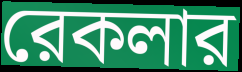
রেকলার